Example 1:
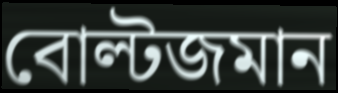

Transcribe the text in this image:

বোল্টজমান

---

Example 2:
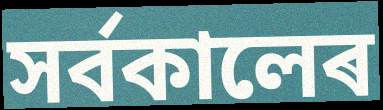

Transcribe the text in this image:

সৰ্বকালেৰ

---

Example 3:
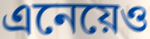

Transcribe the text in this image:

এনেয়েও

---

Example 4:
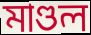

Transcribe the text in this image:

মাণ্ডল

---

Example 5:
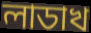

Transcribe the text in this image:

লাডাখ